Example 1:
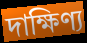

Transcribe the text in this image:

দাক্ষিণ্য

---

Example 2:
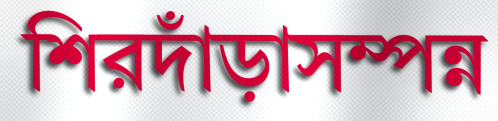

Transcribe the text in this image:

শিরদাঁড়াসম্পন্ন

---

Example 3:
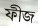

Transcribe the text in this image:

ফীজ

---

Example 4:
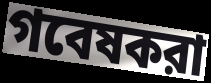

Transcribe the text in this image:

গবেষকরা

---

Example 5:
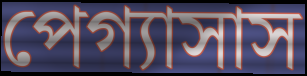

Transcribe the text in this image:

পেগ্যাসাস